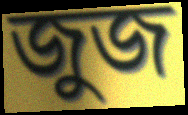
জুজ